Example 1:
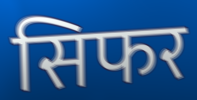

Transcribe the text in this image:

सिफर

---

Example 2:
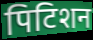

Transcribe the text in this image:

पिटिशन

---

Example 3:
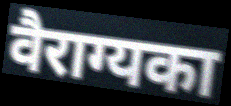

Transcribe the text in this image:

वैराग्यका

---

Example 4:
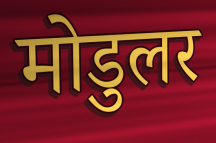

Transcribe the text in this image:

मोडुलर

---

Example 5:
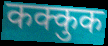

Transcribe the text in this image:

कक्कुक